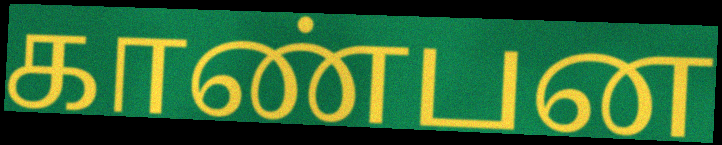
காண்பன